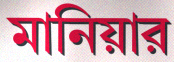
মানিয়ার